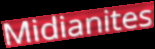
Midianites